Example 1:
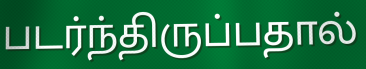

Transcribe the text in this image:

படர்ந்திருப்பதால்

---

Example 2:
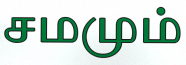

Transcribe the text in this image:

சமமும்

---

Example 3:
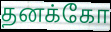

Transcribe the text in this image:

தனக்கோ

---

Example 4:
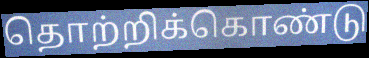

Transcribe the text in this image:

தொற்றிக்கொண்டு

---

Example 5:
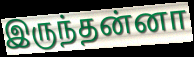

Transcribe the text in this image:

இருந்தன்னா